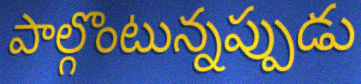
పాల్గొంటున్నప్పుడు